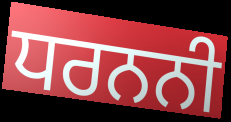
ਧਰਨਨੀ